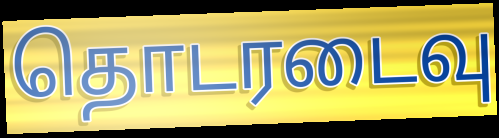
தொடரடைவு